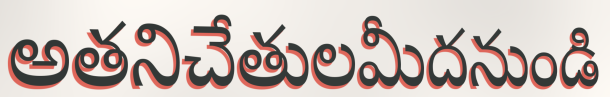
అతనిచేతులమీదనుండి